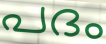
പദം